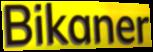
Bikaner